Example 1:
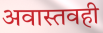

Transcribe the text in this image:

अवास्तवही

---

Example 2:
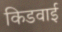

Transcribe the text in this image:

किडवाई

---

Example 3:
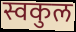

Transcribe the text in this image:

स्वकुल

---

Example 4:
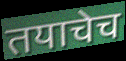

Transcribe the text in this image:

तयाचेच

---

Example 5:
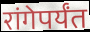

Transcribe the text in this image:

रांगेपर्यंत